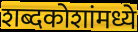
शब्दकोशांमध्ये